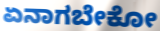
ಏನಾಗಬೇಕೋ